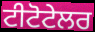
ਟੀਟੋਟੇਲਰ